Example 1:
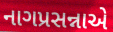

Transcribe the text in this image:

નાગપ્રસન્નાએ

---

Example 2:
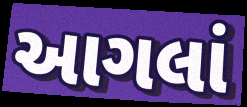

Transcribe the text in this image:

આગલાં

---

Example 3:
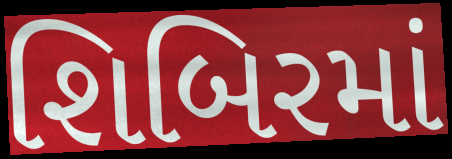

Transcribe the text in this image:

શિબિરમાં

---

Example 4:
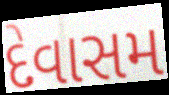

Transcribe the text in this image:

દેવાસમ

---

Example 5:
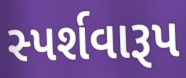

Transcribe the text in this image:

સ્પર્શવારૂપ